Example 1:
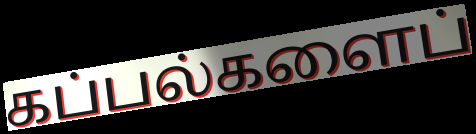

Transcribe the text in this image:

கப்பல்களைப்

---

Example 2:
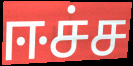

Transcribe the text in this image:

ஈச்ச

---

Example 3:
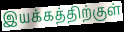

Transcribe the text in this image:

இயக்கத்திற்குள்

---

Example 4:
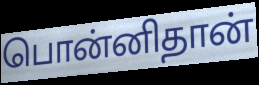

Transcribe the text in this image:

பொன்னிதான்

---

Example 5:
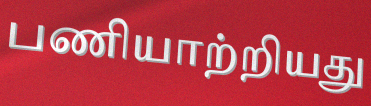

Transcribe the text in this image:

பணியாற்றியது